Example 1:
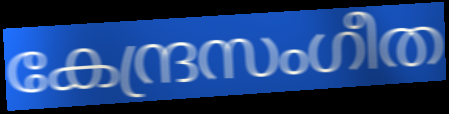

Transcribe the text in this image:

കേന്ദ്രസംഗീത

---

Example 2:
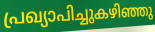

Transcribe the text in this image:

പ്രഖ്യാപിച്ചുകഴിഞ്ഞു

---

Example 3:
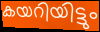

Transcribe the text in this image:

കയറിയിട്ടും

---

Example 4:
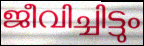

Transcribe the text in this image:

ജീവിച്ചിട്ടും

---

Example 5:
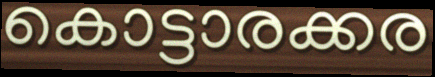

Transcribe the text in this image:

കൊട്ടാരക്കര